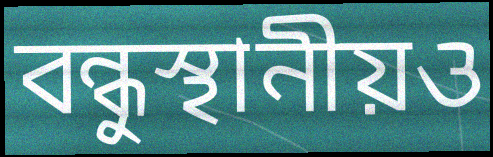
বন্ধুস্থানীয়ও